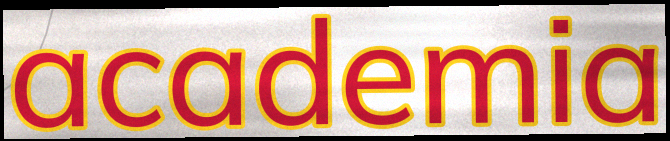
academia